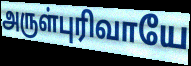
அருள்புரிவாயே